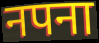
नपना